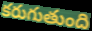
కరుగుతుంది